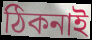
ঠিকনাই